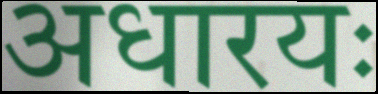
अधारयः